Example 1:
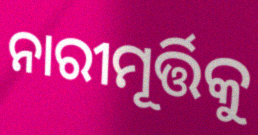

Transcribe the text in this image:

ନାରୀମୂର୍ତ୍ତିକୁ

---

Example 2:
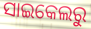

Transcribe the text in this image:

ସାଇକେଲରୁ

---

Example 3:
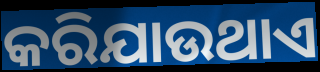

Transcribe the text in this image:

କରିଯାଉଥାଏ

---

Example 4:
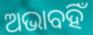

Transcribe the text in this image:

ଅଭାବହିଁ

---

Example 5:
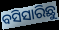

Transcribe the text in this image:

ବସିସାରିଛୁ